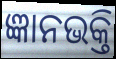
ଜ୍ଞାନଭକ୍ତି